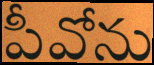
పీవోను